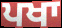
ਪਖਾ